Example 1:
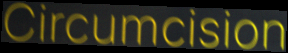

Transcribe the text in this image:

Circumcision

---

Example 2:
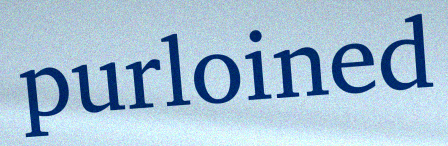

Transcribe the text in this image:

purloined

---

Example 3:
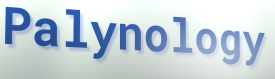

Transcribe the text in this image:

Palynology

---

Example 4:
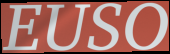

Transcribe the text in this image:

EUSO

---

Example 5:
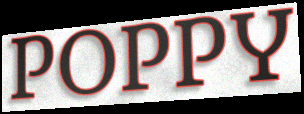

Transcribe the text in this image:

POPPY